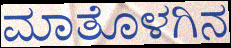
ಮಾತೊಳಗಿನ